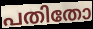
പതിതോ